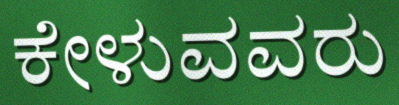
ಕೇಳುವವರು